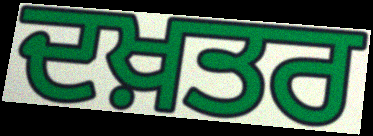
ਦਖ਼ਤਰ